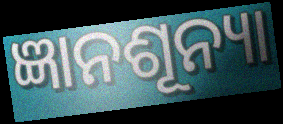
ଜ୍ଞାନଶୂନ୍ୟା